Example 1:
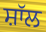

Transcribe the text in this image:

ਸ਼ਾੱਲ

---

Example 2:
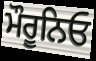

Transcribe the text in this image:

ਮੌਰੂਨਿਓ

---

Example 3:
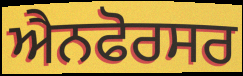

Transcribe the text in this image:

ਐਨਫੋਰਸਰ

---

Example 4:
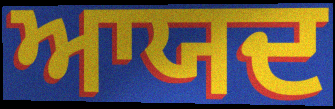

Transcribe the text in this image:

ਆਯਦ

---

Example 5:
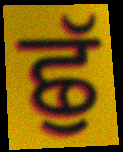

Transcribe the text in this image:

ਛੁੱ